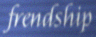
frendship